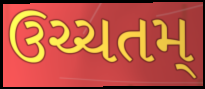
ઉચ્ચતમ્